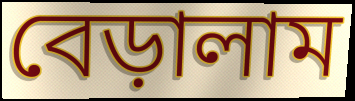
বেড়ালাম